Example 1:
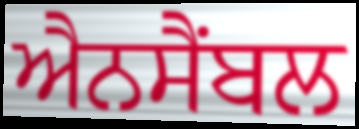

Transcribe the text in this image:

ਐਨਸੈਂਬਲ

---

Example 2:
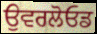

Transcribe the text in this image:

ਉਵਰਲੋਓਡ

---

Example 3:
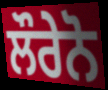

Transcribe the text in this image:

ਲੌਰੇਨੋ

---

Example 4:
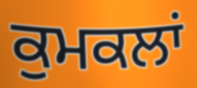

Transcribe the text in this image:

ਕੁਮਕਲਾਂ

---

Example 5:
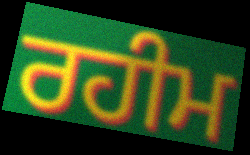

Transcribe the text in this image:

ਰਹੀਮ